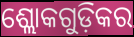
ଶ୍ଲୋକଗୁଡ଼ିକର